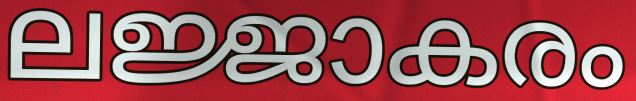
ലജ്ജാകരം